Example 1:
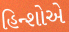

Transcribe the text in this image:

હિન્શોએ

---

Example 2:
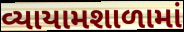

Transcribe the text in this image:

વ્યાયામશાળામાં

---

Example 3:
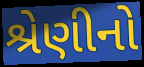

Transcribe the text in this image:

શ્રેણીનો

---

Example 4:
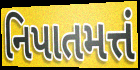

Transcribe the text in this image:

નિપાતમત્તં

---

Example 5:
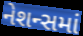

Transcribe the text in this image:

નેશન્સમાં